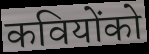
कवियोंको